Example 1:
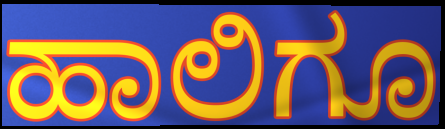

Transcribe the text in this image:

ಹಾಲಿಗೂ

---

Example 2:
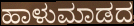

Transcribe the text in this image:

ಹಾಳುಮಾಡದ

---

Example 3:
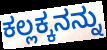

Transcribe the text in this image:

ಕಲ್ಲಕ್ಕನನ್ನು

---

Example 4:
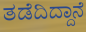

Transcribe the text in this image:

ತಡೆದಿದ್ದಾನೆ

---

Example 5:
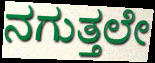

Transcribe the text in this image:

ನಗುತ್ತಲೇ